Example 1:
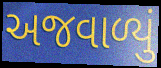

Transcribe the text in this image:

અજવાળ્યું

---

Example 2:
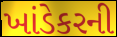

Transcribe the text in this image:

ખાંડેકરની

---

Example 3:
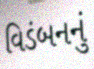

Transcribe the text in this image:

વિડંબનનું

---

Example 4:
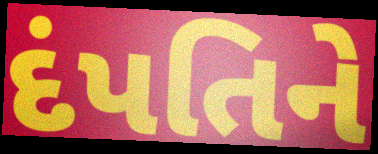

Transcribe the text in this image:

દંપતિને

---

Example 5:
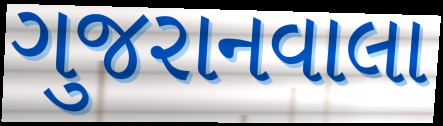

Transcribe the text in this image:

ગુજરાનવાલા